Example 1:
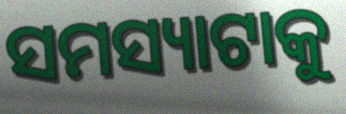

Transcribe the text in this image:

ସମସ୍ୟାଟାକୁ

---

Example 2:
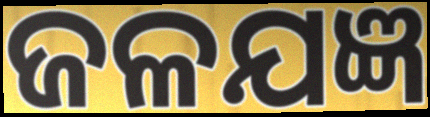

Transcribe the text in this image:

ଜଳଯଜ୍ଞ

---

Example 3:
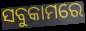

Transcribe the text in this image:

ସବୁକାମରେ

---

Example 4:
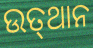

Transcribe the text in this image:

ଉତ୍‍ଥାନ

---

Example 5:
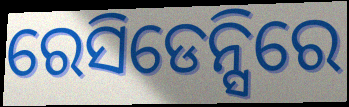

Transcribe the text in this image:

ରେସିଡେନ୍ସିରେ